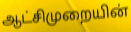
ஆட்சிமுறையின்